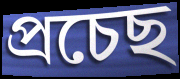
প্ৰচেছ